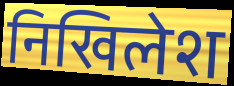
निखिलेश